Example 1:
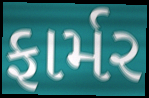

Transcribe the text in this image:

ફાર્મર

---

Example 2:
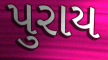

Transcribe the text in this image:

પુરાય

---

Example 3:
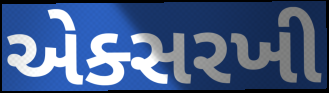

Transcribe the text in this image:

એક્સરખી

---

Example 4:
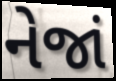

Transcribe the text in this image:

નેજાં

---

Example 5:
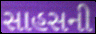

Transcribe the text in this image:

સાહસની